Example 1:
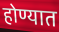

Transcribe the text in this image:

होण्यात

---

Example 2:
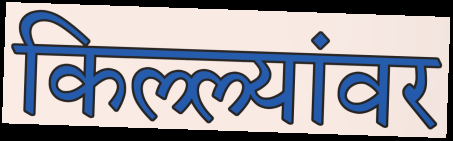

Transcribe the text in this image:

किल्ल्यांवर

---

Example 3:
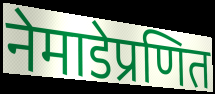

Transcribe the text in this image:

नेमाडेप्रणित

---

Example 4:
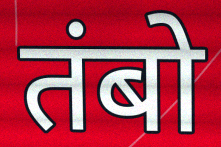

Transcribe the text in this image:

तंबो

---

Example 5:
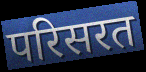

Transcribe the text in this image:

परिसरत